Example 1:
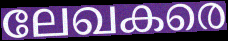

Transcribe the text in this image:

ലേഖകരെ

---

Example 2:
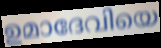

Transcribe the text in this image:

ഉമാദേവിയെ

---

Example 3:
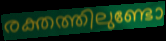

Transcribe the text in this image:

രക്തത്തിലുണ്ടോ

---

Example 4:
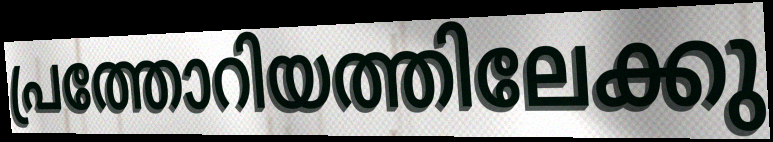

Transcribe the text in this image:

പ്രത്തോറിയത്തിലേക്കു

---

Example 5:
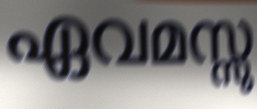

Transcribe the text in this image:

ഏവമസ്സു